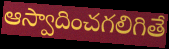
ఆస్వాదించగలిగితే